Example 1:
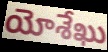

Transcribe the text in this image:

యోశేఖు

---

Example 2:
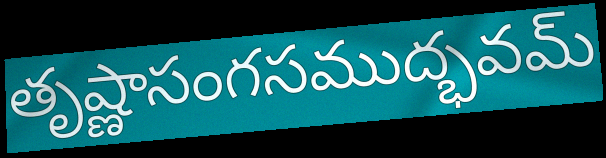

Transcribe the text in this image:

తృష్ణాసంగసముద్భవమ్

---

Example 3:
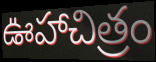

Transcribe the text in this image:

ఊహాచిత్రం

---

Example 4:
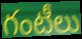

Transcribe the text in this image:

గంటీలు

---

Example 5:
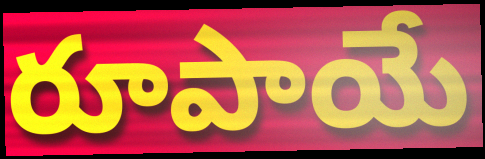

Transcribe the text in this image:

రూపాయే